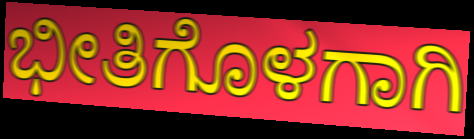
ಭೀತಿಗೊಳಗಾಗಿ